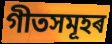
গীতসমূহৰ